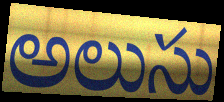
అలుసు